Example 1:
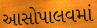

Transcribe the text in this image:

આસોપાલવમાં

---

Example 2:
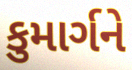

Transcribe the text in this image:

કુમાર્ગને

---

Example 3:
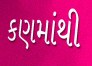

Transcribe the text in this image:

કણમાંથી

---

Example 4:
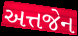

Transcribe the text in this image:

અત્તજેન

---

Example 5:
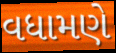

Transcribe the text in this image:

વધામણે